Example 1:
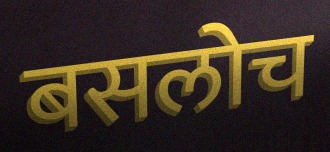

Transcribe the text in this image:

बसलोच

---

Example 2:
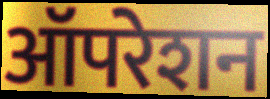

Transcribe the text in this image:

ऑपरेशन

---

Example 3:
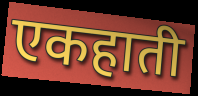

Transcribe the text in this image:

एकहाती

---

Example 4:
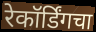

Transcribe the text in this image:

रेकॉर्डिंगचा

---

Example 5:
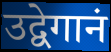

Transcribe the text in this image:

उद्वेगानं